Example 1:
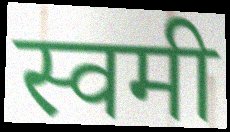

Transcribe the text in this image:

स्वमी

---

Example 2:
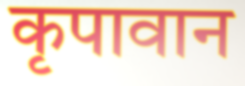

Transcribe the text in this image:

कृपावान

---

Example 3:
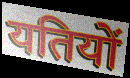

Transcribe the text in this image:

यतियों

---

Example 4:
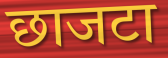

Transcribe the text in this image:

छाजटा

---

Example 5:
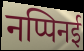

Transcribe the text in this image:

नप्पिनई